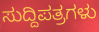
ಸುದ್ದಿಪತ್ರಗಳು